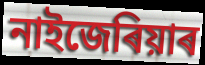
নাইজেৰিয়াৰ